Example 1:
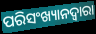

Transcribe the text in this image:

ପରିସଂଖ୍ୟାନଦ୍ଵାରା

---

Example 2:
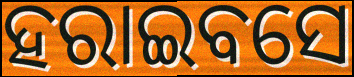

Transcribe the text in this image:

ହରାଇବସେ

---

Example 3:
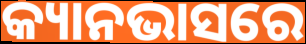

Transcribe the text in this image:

କ୍ୟାନଭାସରେ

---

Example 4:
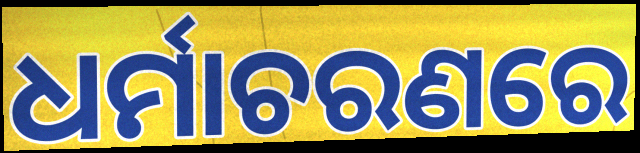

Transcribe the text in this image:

ଧର୍ମାଚରଣରେ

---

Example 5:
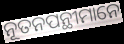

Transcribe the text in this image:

ନୂତନପନ୍ଥୀମାନେ